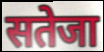
सतेजा